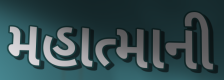
મહાત્માની